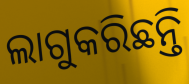
ଲାଗୁକରିଛନ୍ତି